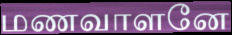
மணவாளனே